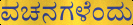
ವಚನಗಳೆಂದು